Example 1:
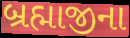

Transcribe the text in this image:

બ્રહ્માજીના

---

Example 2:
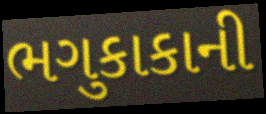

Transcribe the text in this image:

ભગુકાકાની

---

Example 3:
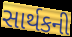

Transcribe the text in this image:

સાર્થકની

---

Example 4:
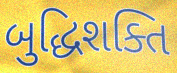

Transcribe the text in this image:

બુદ્ધિશક્તિ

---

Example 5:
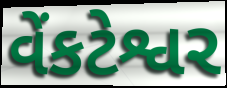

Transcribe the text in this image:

વેંકટેશ્વર